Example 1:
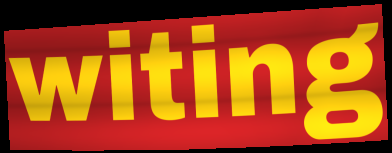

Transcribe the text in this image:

witing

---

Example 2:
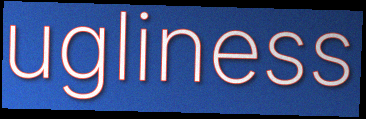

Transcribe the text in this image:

ugliness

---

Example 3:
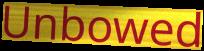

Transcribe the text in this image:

Unbowed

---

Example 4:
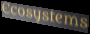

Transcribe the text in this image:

Ecosystems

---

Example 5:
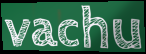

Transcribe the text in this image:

vachu